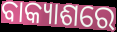
ବାକ୍ୟାଶରେ